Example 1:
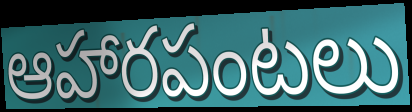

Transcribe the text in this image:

ఆహారపంటలు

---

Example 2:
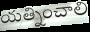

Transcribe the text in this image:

యత్నించాలి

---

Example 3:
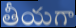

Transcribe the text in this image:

తీయగా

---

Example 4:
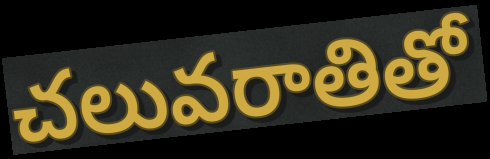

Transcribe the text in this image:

చలువరాతితో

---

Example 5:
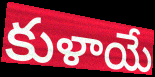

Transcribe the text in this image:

కుళాయే